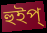
হুইপ্